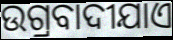
ଉଗ୍ରବାଦୀଯାଏ